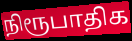
நிரூபாதிக